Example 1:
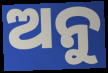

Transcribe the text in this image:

ଅନୁ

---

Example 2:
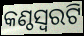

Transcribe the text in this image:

କଣ୍ଠସ୍ଵରଟି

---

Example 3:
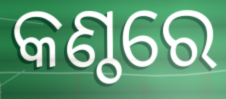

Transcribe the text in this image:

କଣ୍ଠରେ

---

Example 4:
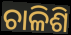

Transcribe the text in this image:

ଚାଳିଶି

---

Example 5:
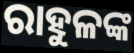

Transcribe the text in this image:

ରାହୁଳଙ୍କ